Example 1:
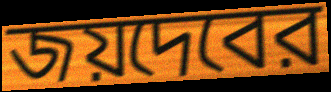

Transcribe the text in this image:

জয়দেবের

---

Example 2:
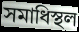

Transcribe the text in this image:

সমাধিস্থল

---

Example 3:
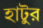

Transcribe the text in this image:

হাটুর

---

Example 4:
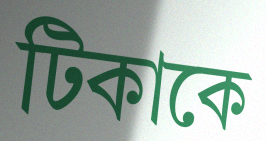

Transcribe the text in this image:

টিকাকে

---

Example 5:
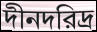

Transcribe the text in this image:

দীনদরিদ্র